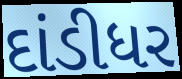
દાંડીધર